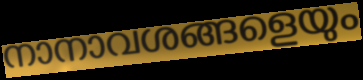
നാനാവശങ്ങളെയും